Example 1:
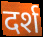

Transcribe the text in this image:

दर्श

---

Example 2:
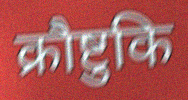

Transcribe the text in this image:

क्रौष्टुकि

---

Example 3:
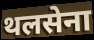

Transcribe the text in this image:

थलसेना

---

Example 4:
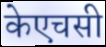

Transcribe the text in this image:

केएचसी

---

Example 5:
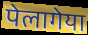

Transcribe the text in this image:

पेलागेया